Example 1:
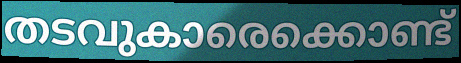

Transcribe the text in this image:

തടവുകാരെക്കൊണ്ട്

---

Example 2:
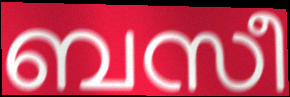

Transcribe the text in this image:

ബസീ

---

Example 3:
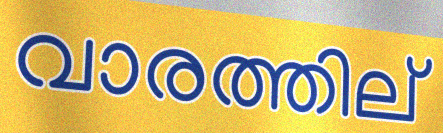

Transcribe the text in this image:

വാരത്തില്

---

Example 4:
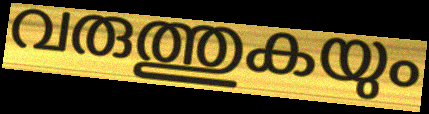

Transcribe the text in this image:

വരുത്തുകയും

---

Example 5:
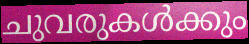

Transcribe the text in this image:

ചുവരുകൾക്കും